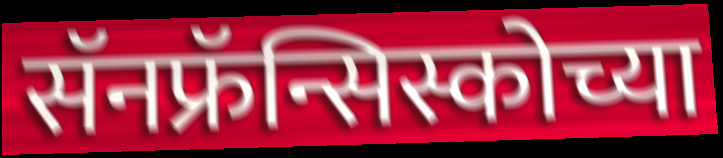
सॅनफ्रॅन्सिस्कोच्या